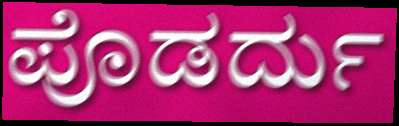
ಪೊಡರ್ದು